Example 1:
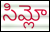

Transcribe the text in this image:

సిమ్లో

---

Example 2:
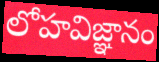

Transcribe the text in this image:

లోహవిజ్ఞానం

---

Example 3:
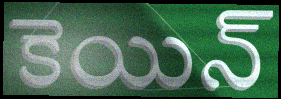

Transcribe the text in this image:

కెయిన్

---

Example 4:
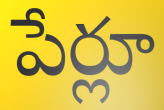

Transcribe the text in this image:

పేర్లూ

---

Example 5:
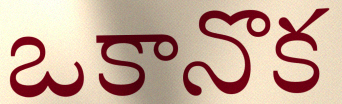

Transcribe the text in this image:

ఒకానొక